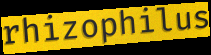
rhizophilus